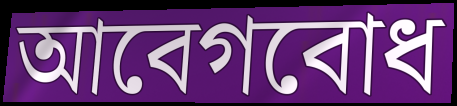
আবেগবোধ